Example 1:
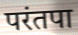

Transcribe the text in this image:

परंतपा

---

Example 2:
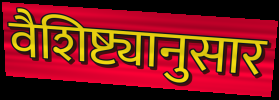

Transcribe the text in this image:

वैशिष्ट्यानुसार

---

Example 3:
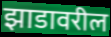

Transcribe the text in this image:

झाडावरील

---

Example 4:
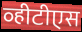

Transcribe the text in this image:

व्हीटीएस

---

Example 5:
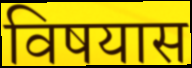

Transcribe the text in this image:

विषयास